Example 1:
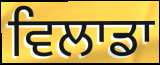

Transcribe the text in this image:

ਵਿਲਾਡਾ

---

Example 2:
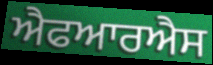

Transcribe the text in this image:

ਐਫਆਰਐਸ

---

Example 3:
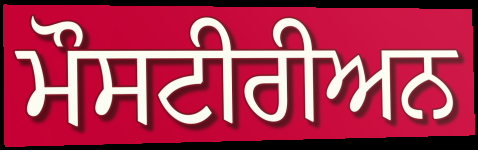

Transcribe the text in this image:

ਮੌਸਟੀਰੀਅਨ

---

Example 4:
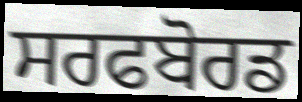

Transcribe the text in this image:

ਸਰਫਬੋਰਡ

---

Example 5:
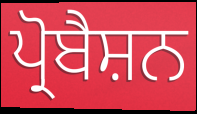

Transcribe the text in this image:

ਪ੍ਰੋਬੈਸ਼ਨ